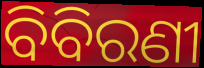
ବିବିରଣୀ